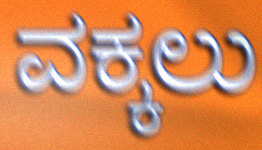
ವಕ್ಕಲು